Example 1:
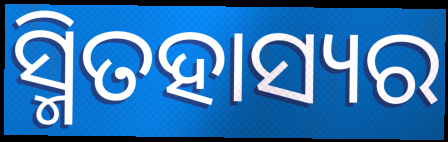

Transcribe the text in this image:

ସ୍ମିତହାସ୍ୟର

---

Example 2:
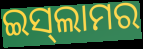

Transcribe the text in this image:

ଇସ୍‍ଲାମର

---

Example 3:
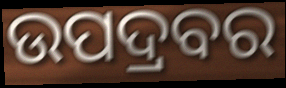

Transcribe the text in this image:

ଉପଦ୍ରବର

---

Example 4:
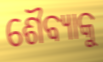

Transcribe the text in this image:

ଶୈବ୍ୟାକୁ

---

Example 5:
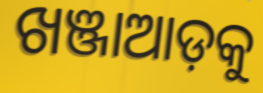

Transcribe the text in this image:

ଖଞ୍ଜାଆଡ଼କୁ